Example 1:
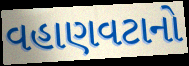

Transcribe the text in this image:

વહાણવટાનો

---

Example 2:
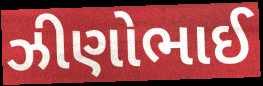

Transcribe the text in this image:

ઝીણોભાઈ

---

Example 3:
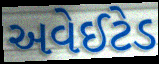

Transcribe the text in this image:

અવેઈટેડ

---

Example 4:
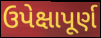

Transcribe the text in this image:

ઉપેક્ષાપૂર્ણ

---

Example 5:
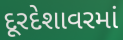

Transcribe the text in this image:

દૂરદેશાવરમાં